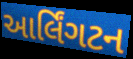
આર્લિંગટન